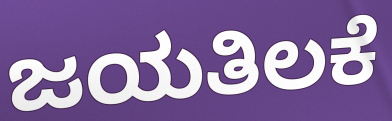
ಜಯತಿಲಕೆ